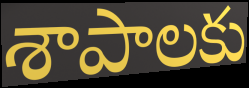
శాపాలకు